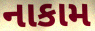
નાકામ